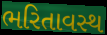
ભરિતાવસ્થ